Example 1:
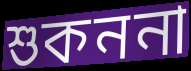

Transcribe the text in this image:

শুকননা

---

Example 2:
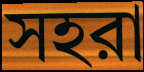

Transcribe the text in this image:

সহরা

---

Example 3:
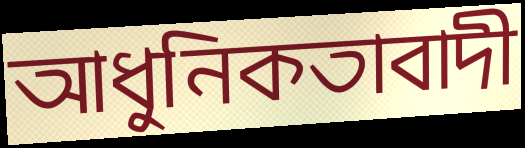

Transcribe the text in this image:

আধুনিকতাবাদী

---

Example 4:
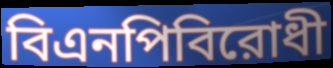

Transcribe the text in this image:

বিএনপিবিরোধী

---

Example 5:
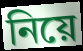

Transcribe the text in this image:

নিয়ে